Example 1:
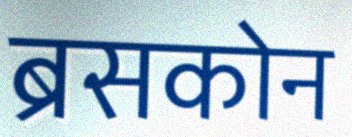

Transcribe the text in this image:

ब्रसकोन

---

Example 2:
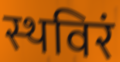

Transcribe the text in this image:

स्थविरं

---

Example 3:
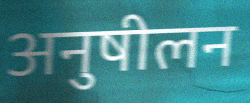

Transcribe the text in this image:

अनुषीलन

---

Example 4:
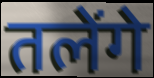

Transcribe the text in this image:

तलेंगे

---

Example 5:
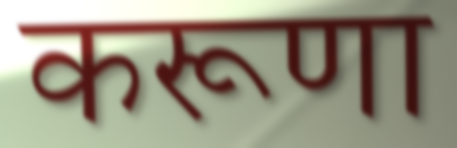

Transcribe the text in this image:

करूणा